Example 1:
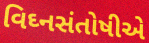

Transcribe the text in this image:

વિઘ્નસંતોષીએ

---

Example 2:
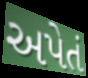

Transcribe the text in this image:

અપેતં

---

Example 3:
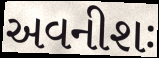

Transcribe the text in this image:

અવનીશઃ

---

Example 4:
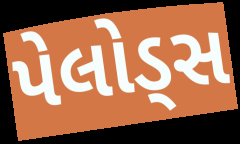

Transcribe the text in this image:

પેલોડ્સ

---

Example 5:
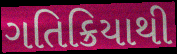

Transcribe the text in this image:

ગતિક્રિયાથી